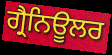
ਗ੍ਰੈਨਿਊਲਰ